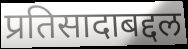
प्रतिसादाबद्दल